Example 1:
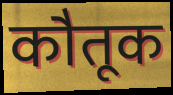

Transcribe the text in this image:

कौतूक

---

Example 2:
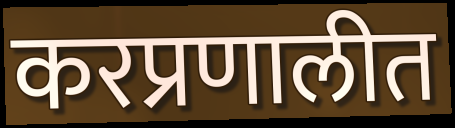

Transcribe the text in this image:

करप्रणालीत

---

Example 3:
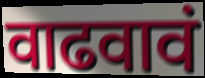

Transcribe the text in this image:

वाढवावं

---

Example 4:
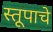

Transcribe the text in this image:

स्तूपाचे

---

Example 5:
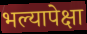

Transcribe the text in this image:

भल्यापेक्षा